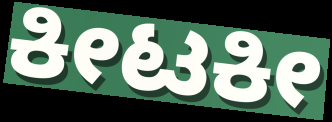
ಕೀಟಕೀ